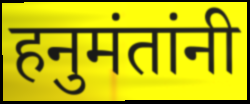
हनुमंतांनी